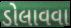
ડોલાવવા